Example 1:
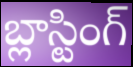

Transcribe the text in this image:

బ్లాస్టింగ్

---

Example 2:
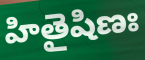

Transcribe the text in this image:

హితైషిణః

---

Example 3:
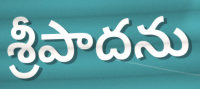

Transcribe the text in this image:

శ్రీపాదను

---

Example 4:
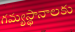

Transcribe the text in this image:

గమ్యస్థానాలకు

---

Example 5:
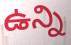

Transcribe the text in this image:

ఉన్ని